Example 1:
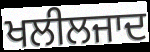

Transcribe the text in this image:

ਖਲੀਲਜਾਦ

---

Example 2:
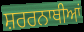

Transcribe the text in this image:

ਸ਼ਰਰਨਾਥੀਆਂ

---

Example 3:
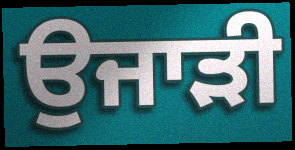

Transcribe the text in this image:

ਉਜਾੜੀ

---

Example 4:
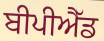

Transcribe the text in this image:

ਬੀਪੀਐੱਡ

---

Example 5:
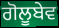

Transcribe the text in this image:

ਗੋਲੂਬੇਵ